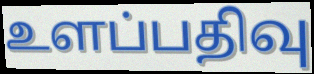
உளப்பதிவு